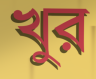
খুর